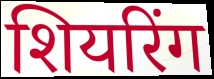
शियरिंग